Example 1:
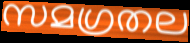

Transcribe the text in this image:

സമഗ്രതല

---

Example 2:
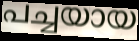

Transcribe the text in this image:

പച്ചയായ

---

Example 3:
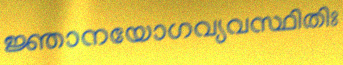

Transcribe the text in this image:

ജ്ഞാനയോഗവ്യവസ്ഥിതിഃ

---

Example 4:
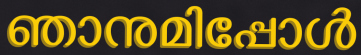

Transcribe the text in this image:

ഞാനുമിപ്പോൾ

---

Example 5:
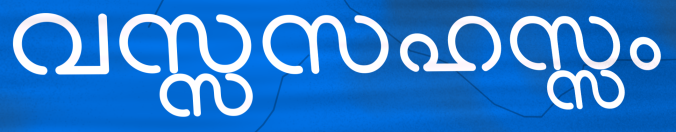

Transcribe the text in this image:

വസ്സസഹസ്സം